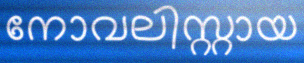
നോവലിസ്റ്റായ